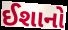
ઈશાનો